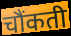
चौंकती